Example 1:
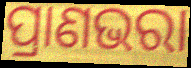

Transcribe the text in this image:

ପ୍ରାଣଭରା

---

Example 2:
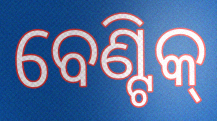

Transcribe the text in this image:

ବେଣ୍ଟିକ୍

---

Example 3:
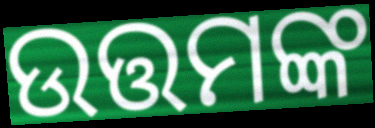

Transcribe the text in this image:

ଉତ୍ତମଙ୍କ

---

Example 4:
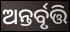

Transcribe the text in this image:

ଅନ୍ତର୍ବୃତ୍ତି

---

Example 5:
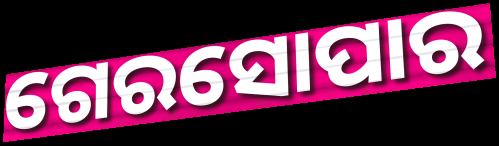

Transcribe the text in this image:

ଗେରସୋପାର